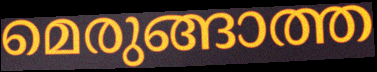
മെരുങ്ങാത്ത